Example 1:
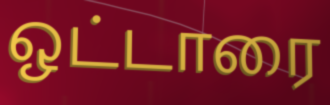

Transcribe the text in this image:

ஒட்டாரை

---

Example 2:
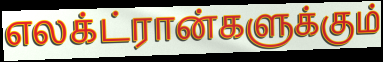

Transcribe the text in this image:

எலக்ட்ரான்களுக்கும்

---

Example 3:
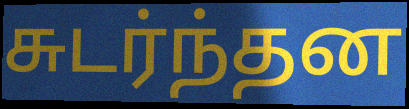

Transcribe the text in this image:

சுடர்ந்தன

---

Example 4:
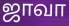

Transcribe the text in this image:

ஜாவா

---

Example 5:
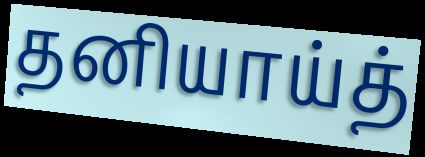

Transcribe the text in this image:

தனியாய்த்